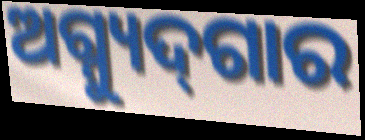
ଅଗ୍ନ୍ୟୁଦ୍‌ଗାର